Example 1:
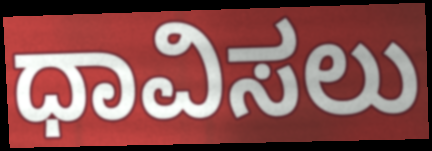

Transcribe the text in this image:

ಧಾವಿಸಲು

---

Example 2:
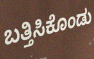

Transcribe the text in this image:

ಬತ್ತಿಸಿಕೊಂಡು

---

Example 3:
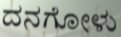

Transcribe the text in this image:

ದನಗೋಳು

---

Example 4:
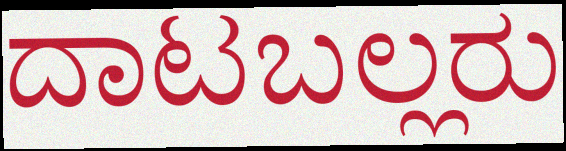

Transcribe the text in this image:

ದಾಟಬಲ್ಲರು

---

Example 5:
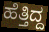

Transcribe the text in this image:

ಹೆತ್ತಿದ್ದ